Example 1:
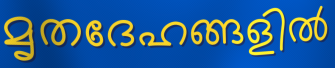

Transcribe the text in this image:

മൃതദേഹങ്ങളിൽ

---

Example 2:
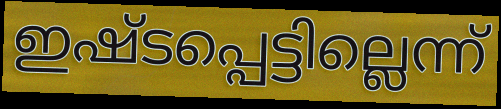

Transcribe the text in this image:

ഇഷ്ടപ്പെട്ടില്ലെന്ന്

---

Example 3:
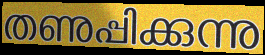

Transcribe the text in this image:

തണുപ്പിക്കുന്നു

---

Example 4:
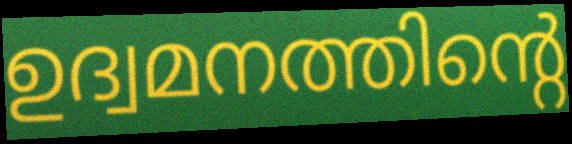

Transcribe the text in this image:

ഉദ്വമനത്തിന്റെ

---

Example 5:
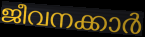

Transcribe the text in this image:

ജീവനക്കാർ